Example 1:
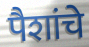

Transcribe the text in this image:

पैशांचे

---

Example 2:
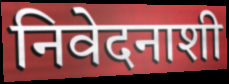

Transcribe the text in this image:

निवेदनाशी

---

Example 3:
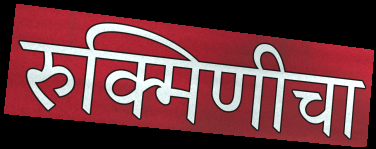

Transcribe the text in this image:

रुक्मिणीचा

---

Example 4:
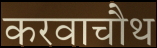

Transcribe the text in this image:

करवाचौथ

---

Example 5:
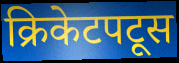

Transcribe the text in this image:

क्रिकेटपटूस